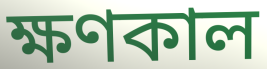
ক্ষণকাল